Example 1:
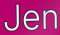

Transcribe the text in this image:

Jen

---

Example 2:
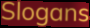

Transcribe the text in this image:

Slogans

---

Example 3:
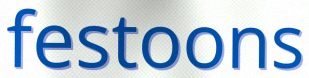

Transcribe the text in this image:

festoons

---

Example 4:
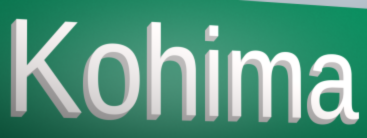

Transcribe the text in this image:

Kohima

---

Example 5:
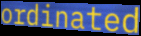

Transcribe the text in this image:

ordinated